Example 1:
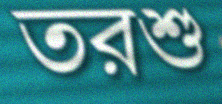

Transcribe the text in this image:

তরশু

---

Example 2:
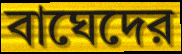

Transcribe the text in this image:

বাঘেদের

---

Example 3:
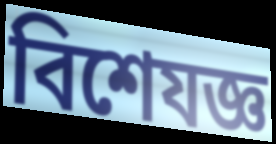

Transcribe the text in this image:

বিশেযজ্ঞ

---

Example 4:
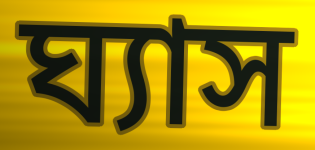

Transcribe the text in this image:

ঘ্যাস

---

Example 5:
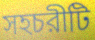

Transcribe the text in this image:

সহচরীটি